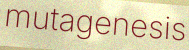
mutagenesis